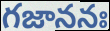
గజాననః